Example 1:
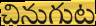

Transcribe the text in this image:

చినుగుట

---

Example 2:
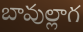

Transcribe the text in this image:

బావుల్లాగ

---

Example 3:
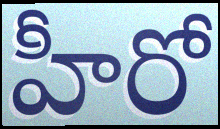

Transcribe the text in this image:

హీరో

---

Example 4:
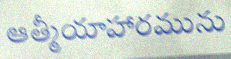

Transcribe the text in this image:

ఆత్మీయాహారమును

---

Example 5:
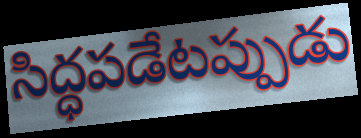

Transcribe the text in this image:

సిద్ధపడేటప్పుడు